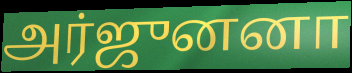
அர்ஜுனனா